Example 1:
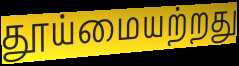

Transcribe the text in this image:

தூய்மையற்றது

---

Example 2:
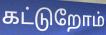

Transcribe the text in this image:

கட்டுறோம்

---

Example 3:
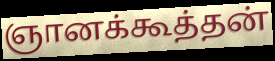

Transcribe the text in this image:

ஞானக்கூத்தன்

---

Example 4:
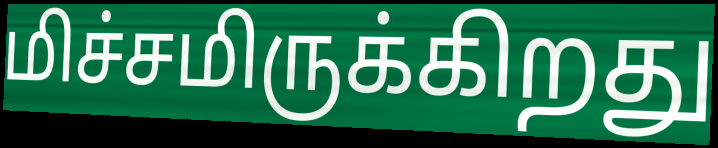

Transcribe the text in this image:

மிச்சமிருக்கிறது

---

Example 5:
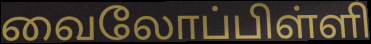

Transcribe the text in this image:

வைலோப்பிள்ளி